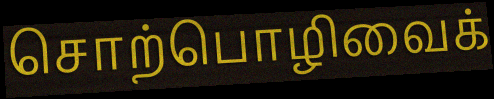
சொற்பொழிவைக்